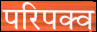
परिपक्व